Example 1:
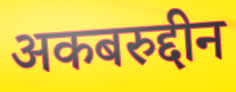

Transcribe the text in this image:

अकबरुद्दीन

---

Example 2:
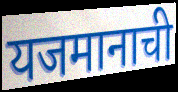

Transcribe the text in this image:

यजमानाची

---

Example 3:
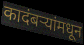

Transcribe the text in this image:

कादंबर्‍यांमधून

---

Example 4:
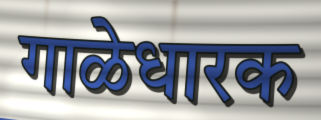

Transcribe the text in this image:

गाळेधारक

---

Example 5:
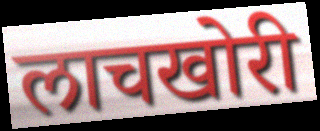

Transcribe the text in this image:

लाचखोरी